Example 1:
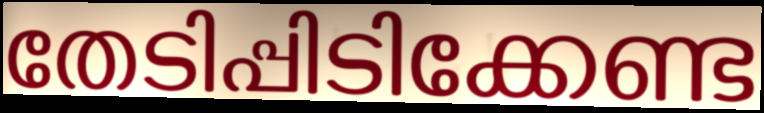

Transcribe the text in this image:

തേടിപ്പിടിക്കേണ്ട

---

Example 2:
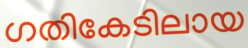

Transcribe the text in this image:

ഗതികേടിലായ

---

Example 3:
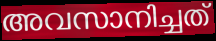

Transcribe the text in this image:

അവസാനിച്ചത്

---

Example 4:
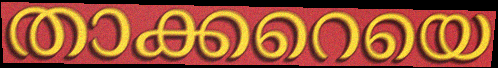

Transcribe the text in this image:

താക്കറെയെ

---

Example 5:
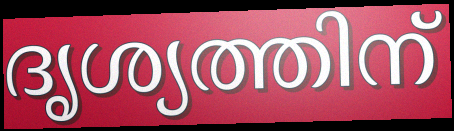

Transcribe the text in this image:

ദൃശ്യത്തിന്